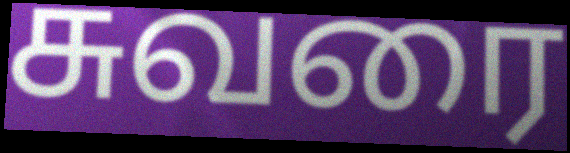
சுவரை